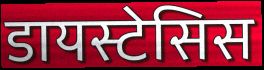
डायस्टेसिस